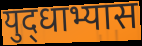
युद्धाभ्यास